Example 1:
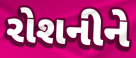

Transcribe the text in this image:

રોશનીને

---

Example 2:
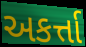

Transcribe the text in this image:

અકર્ત્તા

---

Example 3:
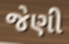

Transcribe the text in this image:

જેણી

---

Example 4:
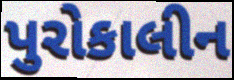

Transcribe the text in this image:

પુરોકાલીન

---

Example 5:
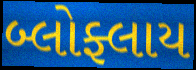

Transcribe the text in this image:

બ્લોફ્લાય